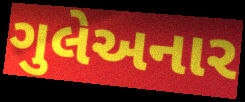
ગુલેઅનાર